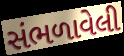
સંભળાવેલી